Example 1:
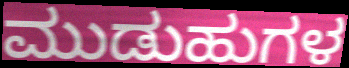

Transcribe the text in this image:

ಮುಡುಹುಗಳ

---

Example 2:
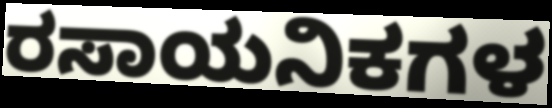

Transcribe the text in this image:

ರಸಾಯನಿಕಗಳ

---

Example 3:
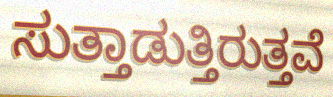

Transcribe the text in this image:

ಸುತ್ತಾಡುತ್ತಿರುತ್ತವೆ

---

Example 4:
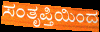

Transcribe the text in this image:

ಸಂತೃಪ್ತಿಯಿಂದ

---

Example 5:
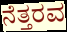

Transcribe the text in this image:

ನೆತ್ತರವ